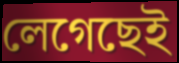
লেগেছেই